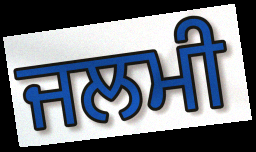
ਜਲਮੀ